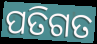
ପତିଗତ